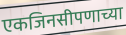
एकजिनसीपणाच्या